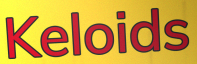
Keloids